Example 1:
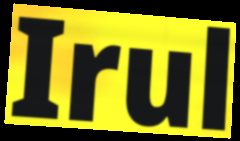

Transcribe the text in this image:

Irul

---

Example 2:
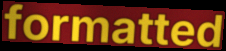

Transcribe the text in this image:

formatted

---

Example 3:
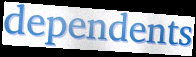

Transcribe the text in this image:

dependents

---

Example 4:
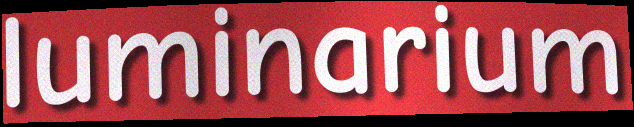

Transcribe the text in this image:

luminarium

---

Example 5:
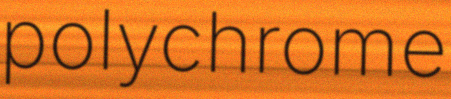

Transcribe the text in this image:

polychrome